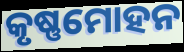
କୃଷ୍ଣମୋହନ